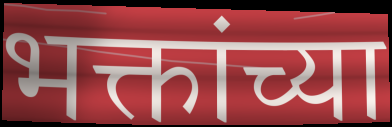
भक्तांच्या